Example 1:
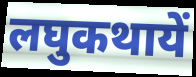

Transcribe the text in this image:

लघुकथायें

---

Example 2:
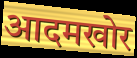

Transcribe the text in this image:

आदमखोर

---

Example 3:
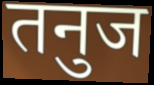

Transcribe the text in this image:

तनुज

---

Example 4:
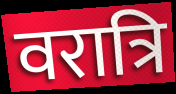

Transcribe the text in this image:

वरात्रि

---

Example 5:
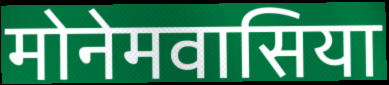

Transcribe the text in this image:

मोनेमवासिया